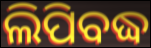
ଲିପିବଦ୍ଧ